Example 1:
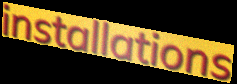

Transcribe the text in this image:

installations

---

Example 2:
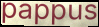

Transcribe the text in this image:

pappus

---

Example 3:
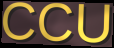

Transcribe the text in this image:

CCU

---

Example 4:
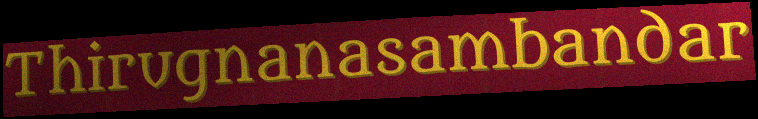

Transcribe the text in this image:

Thirugnanasambandar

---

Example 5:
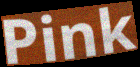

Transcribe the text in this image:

Pink